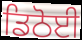
ਡਿਠੋਈ